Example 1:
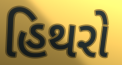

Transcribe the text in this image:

હિથરો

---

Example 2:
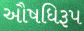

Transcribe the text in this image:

ઔષધિરૂપ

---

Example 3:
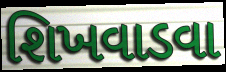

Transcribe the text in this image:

શિખવાડવા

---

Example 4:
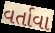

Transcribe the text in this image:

વર્તાવા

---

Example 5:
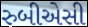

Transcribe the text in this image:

રુબીએસી